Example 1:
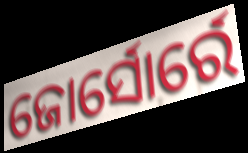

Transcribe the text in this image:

ଜୋର୍ସୋର୍ରେ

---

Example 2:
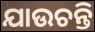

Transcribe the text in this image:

ଯାଉଚନ୍ତି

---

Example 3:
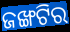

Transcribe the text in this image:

ଜଙ୍ଖଟିର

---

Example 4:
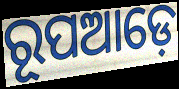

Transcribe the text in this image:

ରୂପଆଡ଼େ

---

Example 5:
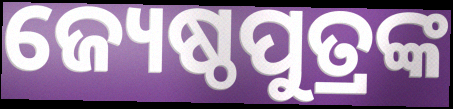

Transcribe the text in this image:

ଜ୍ୟେଷ୍ଠପୁତ୍ରଙ୍କ